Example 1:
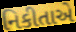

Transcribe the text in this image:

નિકીતાએ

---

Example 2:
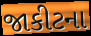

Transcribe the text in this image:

જાકીટના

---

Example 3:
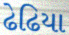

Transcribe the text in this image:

ઢેઢિયા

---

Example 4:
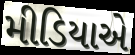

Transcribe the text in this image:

મીડિયાએ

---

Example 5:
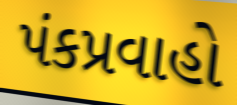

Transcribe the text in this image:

પંકપ્રવાહો